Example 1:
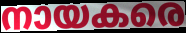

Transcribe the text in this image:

നായകരെ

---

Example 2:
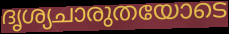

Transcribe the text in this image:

ദൃശ്യചാരുതയോടെ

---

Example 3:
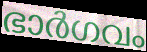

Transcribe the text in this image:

ഭാർഗവം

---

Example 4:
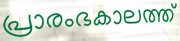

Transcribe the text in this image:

പ്രാരംഭകാലത്ത്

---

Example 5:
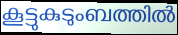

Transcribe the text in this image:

കൂട്ടുകുടുംബത്തിൽ